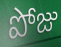
పోజు